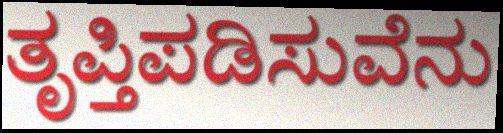
ತೃಪ್ತಿಪಡಿಸುವೆನು